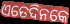
ଏତେଦିନକେ